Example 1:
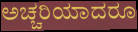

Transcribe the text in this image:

ಅಚ್ಚರಿಯಾದರೂ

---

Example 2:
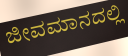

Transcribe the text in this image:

ಜೀವಮಾನದಲ್ಲಿ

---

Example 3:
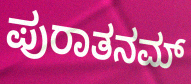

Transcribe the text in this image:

ಪುರಾತನಮ್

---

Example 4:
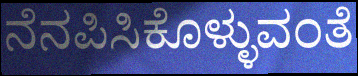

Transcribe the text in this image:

ನೆನಪಿಸಿಕೊಳ್ಳುವಂತೆ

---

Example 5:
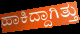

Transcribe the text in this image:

ಹಾಕಿದ್ದಾಗಿತ್ತು